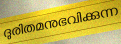
ദുരിതമനുഭവിക്കുന്ന